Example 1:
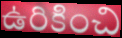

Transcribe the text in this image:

ఉరికించి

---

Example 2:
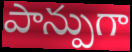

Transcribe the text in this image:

పాన్పుగా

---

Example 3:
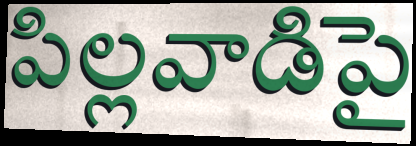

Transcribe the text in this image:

పిల్లవాడిపై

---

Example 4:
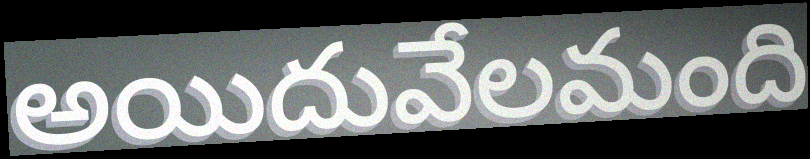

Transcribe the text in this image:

అయిదువేలమంది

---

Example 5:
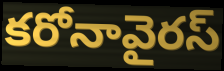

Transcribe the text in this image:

కరోనావైరస్